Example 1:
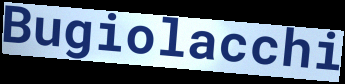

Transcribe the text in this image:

Bugiolacchi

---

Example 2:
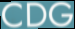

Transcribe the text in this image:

CDG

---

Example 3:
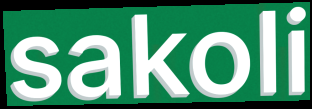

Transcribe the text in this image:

sakoli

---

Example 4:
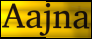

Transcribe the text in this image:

Aajna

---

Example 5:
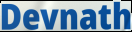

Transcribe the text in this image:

Devnath